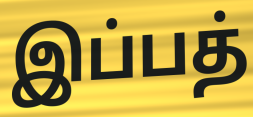
இப்பத்